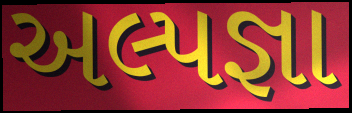
અલ્પજ્ઞા